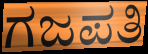
ಗಜಪತಿ